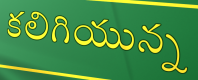
కలిగియున్న